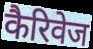
कैरिवेज